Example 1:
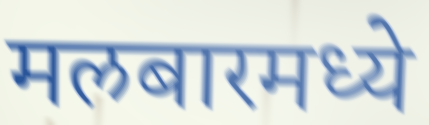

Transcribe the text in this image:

मलबारमध्ये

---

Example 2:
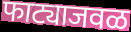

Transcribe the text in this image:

फाट्याजवळ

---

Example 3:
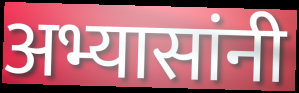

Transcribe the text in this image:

अभ्यासांनी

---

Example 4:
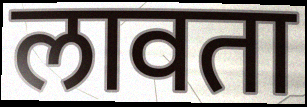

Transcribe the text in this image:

लावता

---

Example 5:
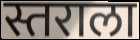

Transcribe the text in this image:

स्तराला